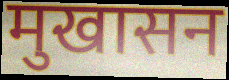
मुखासन